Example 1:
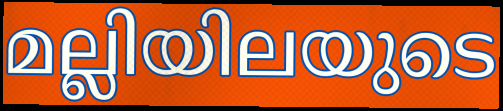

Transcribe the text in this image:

മല്ലിയിലയുടെ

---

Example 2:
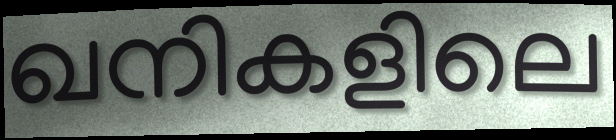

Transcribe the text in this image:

ഖനികളിലെ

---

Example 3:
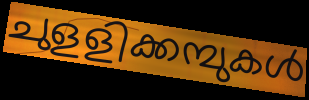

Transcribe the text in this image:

ചുളളിക്കമ്പുകൾ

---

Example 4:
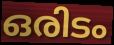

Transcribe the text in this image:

ഒരിടം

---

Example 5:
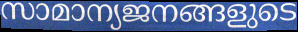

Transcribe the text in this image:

സാമാന്യജനങ്ങളുടെ